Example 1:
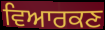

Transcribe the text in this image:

ਵਿਆਰਕਣ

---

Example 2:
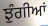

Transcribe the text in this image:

ਝੁੰਗੀਆਂ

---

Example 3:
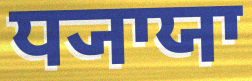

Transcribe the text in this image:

ਧ੍ਯਾਯਾ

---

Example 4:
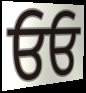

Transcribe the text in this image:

ਓਓ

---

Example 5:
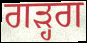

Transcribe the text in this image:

ਗੜ੍ਹਗ